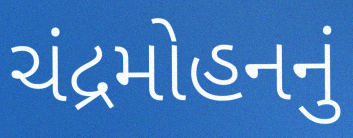
ચંદ્રમોહનનું